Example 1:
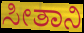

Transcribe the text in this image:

ಸೀತಾನಿ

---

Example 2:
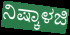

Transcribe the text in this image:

ನಿಷ್ಕಾಳಜಿ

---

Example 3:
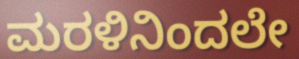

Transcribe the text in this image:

ಮರಳಿನಿಂದಲೇ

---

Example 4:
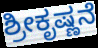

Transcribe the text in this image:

ಶ್ರೀಕೃಷ್ಣನೆ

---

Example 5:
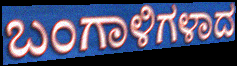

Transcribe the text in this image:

ಬಂಗಾಳಿಗಳಾದ